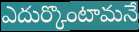
ఎదుర్కొంటామనే